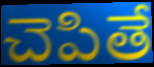
చెపితే